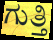
ಗುತ್ತಿ